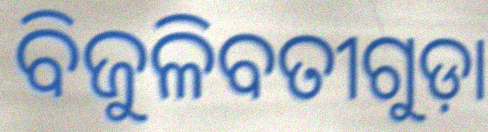
ବିଜୁଳିବତୀଗୁଡ଼ା